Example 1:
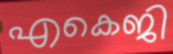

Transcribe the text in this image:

എകെജി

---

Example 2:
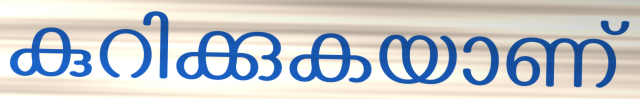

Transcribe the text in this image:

കുറിക്കുകയാണ്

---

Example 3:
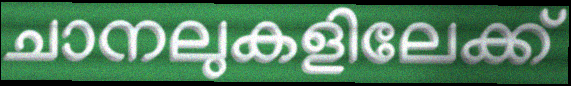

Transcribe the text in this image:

ചാനലുകളിലേക്ക്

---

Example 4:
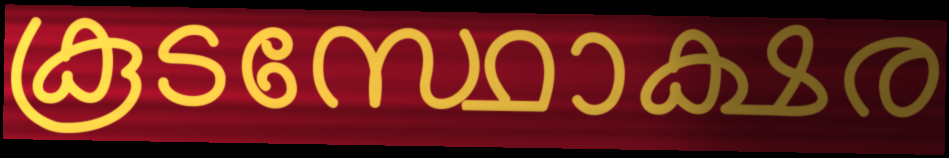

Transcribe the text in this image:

കൂടസ്ഥോക്ഷര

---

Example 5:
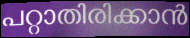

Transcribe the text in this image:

പറ്റാതിരിക്കാൻ